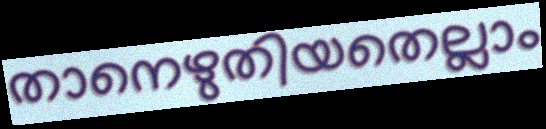
താനെഴുതിയതെല്ലാം